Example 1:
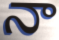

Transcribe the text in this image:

నా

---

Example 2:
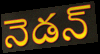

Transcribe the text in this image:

నెడన్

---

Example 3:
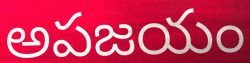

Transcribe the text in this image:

అపజయం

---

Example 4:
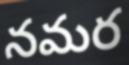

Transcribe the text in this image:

నమర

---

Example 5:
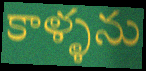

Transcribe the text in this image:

కాళ్ళను